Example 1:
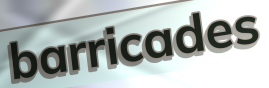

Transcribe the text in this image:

barricades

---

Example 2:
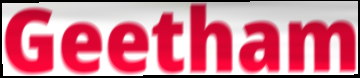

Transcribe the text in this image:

Geetham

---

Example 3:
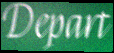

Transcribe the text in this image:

Depart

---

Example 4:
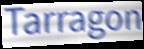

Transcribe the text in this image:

Tarragon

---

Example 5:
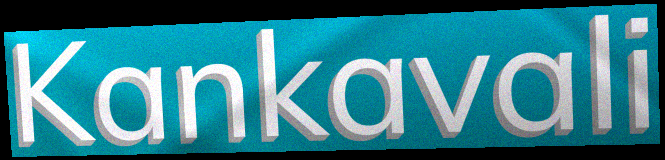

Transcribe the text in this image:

Kankavali